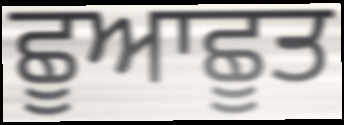
ਛੂਆਛੂਤ